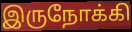
இருநோக்கி